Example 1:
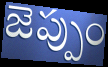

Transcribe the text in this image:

జెప్పుం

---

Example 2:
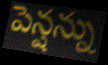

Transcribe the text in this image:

పెన్షన్ను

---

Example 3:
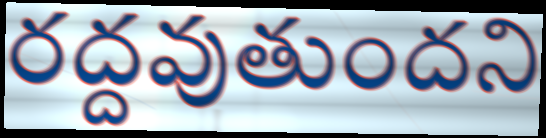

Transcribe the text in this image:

రద్దవుతుందని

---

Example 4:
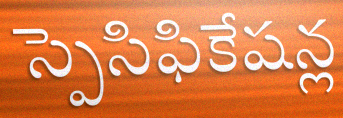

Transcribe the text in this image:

స్పెసిఫికేషన్ల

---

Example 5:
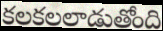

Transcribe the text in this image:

కలకలలాడుతోంది